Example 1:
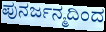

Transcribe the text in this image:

ಪುನರ್ಜನ್ಮದಿಂದ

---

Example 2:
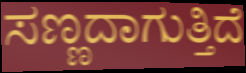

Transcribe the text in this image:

ಸಣ್ಣದಾಗುತ್ತಿದೆ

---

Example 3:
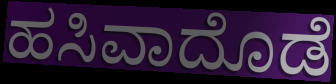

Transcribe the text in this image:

ಹಸಿವಾದೊಡೆ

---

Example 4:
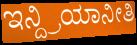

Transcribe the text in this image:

ಇನ್ದ್ರಿಯಾನೀತಿ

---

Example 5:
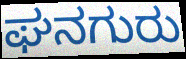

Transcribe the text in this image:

ಘನಗುರು